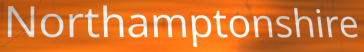
Northamptonshire